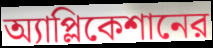
অ্যাপ্লিকেশানের